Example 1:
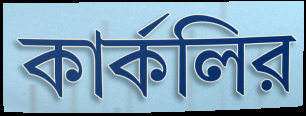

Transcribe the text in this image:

কার্কলির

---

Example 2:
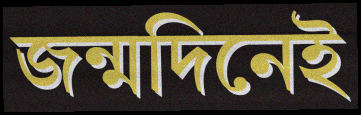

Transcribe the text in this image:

জন্মদিনেই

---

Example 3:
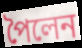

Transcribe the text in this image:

পৈলেন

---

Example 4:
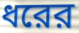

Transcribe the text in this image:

ধরের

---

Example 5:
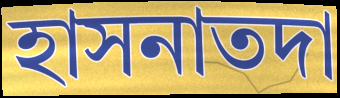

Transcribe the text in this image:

হাসনাতদা